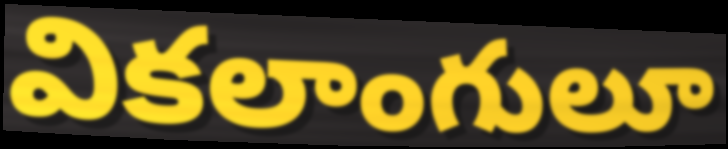
వికలాంగులూ